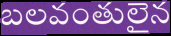
బలవంతులైన